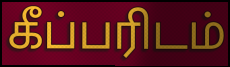
கீப்பரிடம்